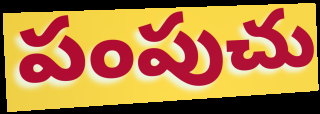
పంపుచు